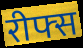
रीफ्स